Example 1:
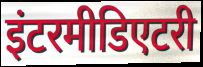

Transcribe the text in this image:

इंटरमीडिएटरी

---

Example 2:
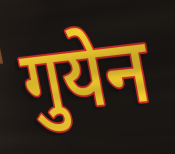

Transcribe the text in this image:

गुयेन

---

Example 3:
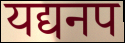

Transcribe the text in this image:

यद्यनप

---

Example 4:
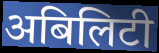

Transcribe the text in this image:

अबिलिटी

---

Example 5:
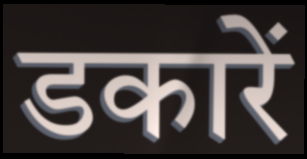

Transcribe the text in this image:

डकारें